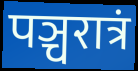
पञ्चरात्रं